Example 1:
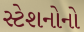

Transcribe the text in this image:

સ્ટેશનોનો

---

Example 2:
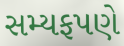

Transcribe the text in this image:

સમ્યફપણે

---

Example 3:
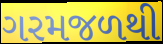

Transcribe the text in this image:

ગરમજળથી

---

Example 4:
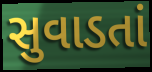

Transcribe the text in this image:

સુવાડતાં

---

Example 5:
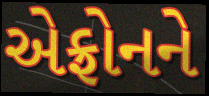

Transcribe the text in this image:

એફ્રોનને